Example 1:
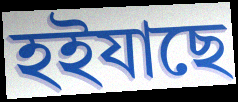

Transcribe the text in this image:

হইযাছে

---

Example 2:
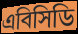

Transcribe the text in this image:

এবিসিডি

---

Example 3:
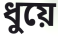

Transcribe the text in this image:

ধুয়ে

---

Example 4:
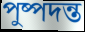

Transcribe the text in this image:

পুষ্পদন্ত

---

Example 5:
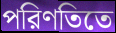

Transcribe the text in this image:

পরিণতিতে